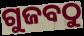
ଗୁଜବଠୁ